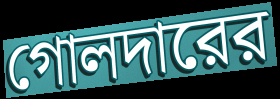
গোলদারের